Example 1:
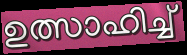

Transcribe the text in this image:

ഉത്സാഹിച്ച്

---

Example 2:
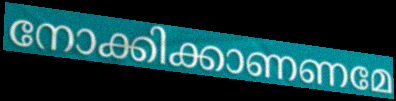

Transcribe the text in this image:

നോക്കിക്കാണണമേ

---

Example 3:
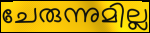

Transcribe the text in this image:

ചേരുന്നുമില്ല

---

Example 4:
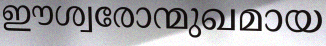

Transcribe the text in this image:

ഈശ്വരോന്മുഖമായ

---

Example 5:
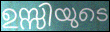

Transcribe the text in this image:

ഉസ്സിയുടെ